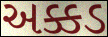
અક્કડ